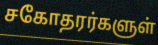
சகோதரர்களுள்